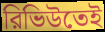
রিভিউতেই